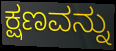
ಕ್ಷಣವನ್ನು